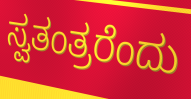
ಸ್ವತಂತ್ರರೆಂದು